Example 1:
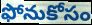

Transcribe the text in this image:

ఫోనుకోసం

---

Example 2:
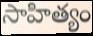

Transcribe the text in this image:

సాహిత్యం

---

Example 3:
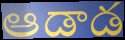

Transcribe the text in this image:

ఆడాడ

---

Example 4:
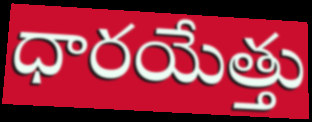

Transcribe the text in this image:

ధారయేత్తు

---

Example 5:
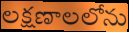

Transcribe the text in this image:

లక్షణాలలోను